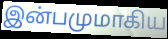
இன்பமுமாகிய